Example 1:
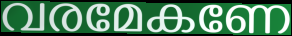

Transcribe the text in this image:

വരമേകണേ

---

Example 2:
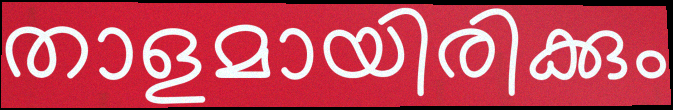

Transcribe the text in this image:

താളമായിരിക്കും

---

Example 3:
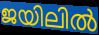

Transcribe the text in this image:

ജയിലിൽ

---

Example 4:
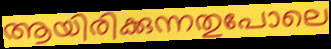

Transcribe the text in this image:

ആയിരിക്കുന്നതുപോലെ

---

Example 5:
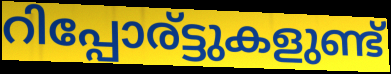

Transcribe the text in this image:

റിപ്പോര്ട്ടുകളുണ്ട്